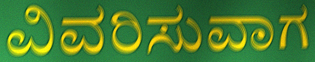
ವಿವರಿಸುವಾಗ